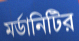
মর্ডানিটির